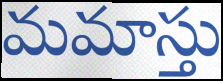
మమాస్తు